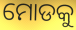
ମୋଡକୁ